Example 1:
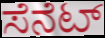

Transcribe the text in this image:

ಸೆನೆಟ್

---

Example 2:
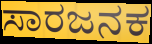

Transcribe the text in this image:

ಸಾರಜನಕ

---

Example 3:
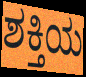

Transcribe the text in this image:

ಶಕ್ತಿಯ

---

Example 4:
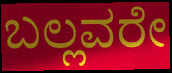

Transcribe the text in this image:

ಬಲ್ಲವರೇ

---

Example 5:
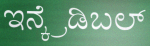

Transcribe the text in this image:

ಇನ್ಕ್ರೆಡಿಬಲ್